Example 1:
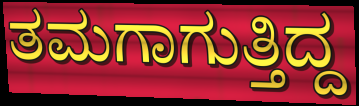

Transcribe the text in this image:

ತಮಗಾಗುತ್ತಿದ್ದ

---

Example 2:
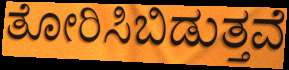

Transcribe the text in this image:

ತೋರಿಸಿಬಿಡುತ್ತವೆ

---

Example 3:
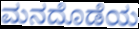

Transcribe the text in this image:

ಮನದೊಡೆಯ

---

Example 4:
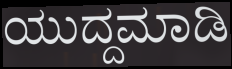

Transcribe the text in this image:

ಯುದ್ದಮಾಡಿ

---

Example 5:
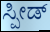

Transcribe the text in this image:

ಸ್ಪೀಡ್